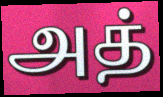
அத்